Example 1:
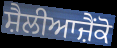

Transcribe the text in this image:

ਸ਼ੈਲੀਆਜ਼ੈਂਕੋ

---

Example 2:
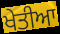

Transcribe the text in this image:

ਖੇਤੀਆ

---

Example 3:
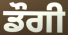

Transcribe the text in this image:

ਡੌਗੀ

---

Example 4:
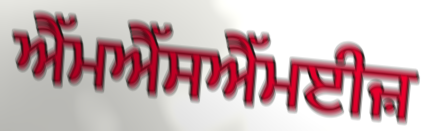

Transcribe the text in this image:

ਐੱਮਐੱਸਐੱਮਈਜ਼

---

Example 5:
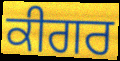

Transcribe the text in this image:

ਕੀਗਰ